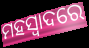
ମହସ୍ୱାଦରେ